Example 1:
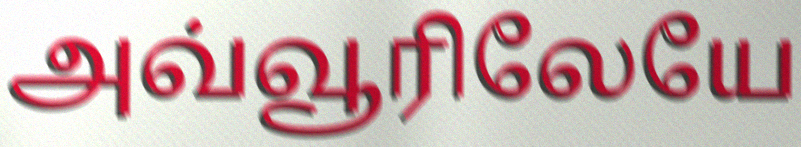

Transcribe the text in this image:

அவ்வூரிலேயே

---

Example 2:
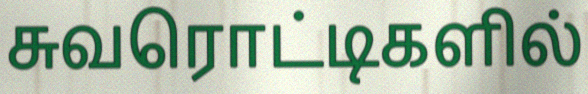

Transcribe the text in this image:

சுவரொட்டிகளில்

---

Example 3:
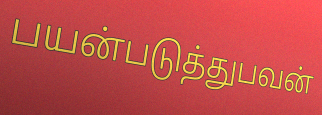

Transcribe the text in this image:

பயன்படுத்துபவன்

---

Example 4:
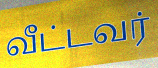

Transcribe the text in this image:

வீட்டவர்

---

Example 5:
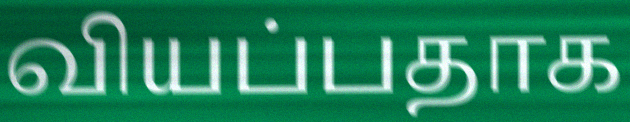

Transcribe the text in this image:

வியப்பதாக